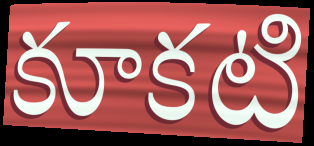
కూకటి